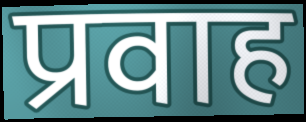
प्रवाह